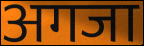
अगजा